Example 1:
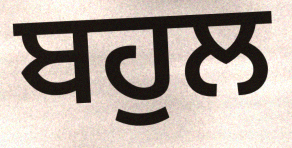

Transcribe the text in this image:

ਬਹੁਲ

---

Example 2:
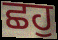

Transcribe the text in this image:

ਛਹੁ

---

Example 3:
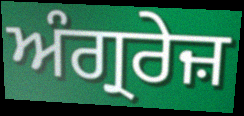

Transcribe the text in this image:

ਅੰਗ੍ਰਰੇਜ਼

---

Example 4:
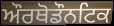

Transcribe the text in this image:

ਔਰਥੋਡੌਨਟਿਕ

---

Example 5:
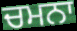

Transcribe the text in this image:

ਚਮਨਾ